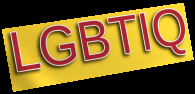
LGBTIQ